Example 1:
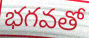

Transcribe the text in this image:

భగవతో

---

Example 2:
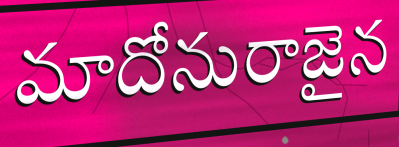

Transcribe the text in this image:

మాదోనురాజైన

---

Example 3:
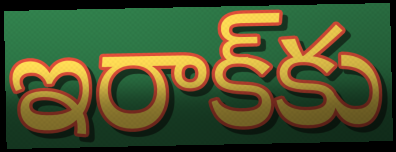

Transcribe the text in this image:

ఇరాక్‌కు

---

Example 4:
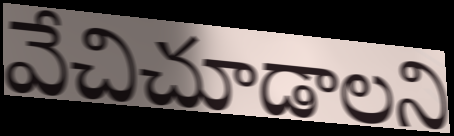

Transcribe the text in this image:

వేచిచూడాలని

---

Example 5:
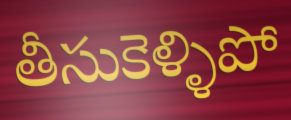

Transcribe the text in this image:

తీసుకెళ్ళిపో